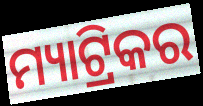
ମ୍ୟାଟ୍ରିକର